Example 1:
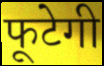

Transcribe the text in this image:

फूटेगी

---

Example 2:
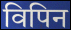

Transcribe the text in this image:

विपिन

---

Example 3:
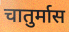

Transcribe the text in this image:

चातुर्मास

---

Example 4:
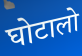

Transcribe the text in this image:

घोटालो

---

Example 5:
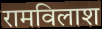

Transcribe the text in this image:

रामविलाश